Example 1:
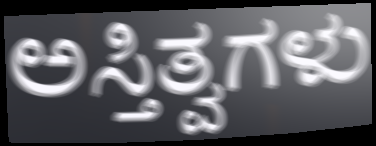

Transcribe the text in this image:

ಅಸ್ತಿತ್ವಗಳು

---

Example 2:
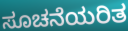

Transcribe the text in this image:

ಸೂಚನೆಯರಿತ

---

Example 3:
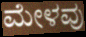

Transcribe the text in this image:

ಮೇಳವು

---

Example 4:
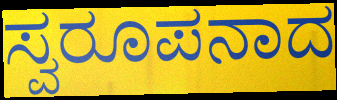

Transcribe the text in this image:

ಸ್ವರೂಪನಾದ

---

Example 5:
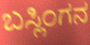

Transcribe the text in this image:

ಬಸ್ಲಿಂಗನ